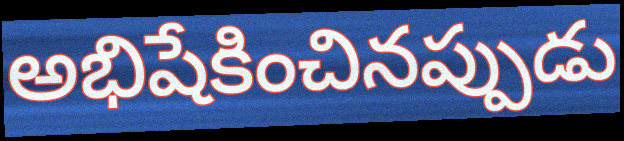
అభిషేకించినప్పుడు